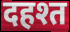
दहश्त